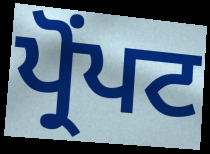
ਪ੍ਰੋਂਪਟ